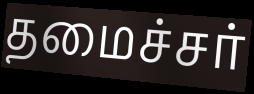
தமைச்சர்